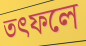
তৎফলে